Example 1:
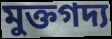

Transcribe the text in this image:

মুক্তগদ্য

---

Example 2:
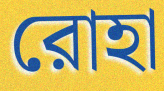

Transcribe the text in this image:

রোহা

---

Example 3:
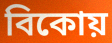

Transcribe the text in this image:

বিকোয়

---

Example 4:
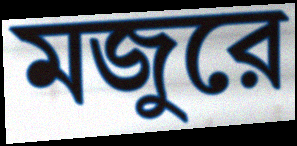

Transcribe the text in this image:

মজুরে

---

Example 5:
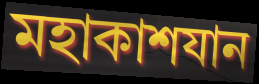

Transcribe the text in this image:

মহাকাশযান